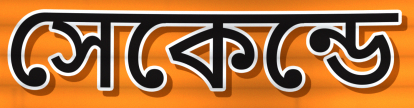
সেকেন্ডে